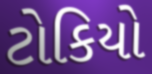
ટોકિયો